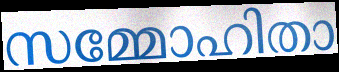
സമ്മോഹിതാ